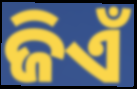
ଜିଏଁ